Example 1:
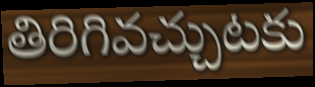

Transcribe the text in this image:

తిరిగివచ్చుటకు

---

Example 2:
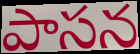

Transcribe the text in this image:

పాసన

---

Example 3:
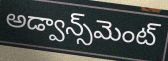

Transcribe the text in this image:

అడ్వాన్స్‌మెంట్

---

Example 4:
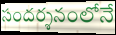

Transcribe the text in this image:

సందర్శనంలోనే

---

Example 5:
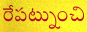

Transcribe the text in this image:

రేపట్నుంచి